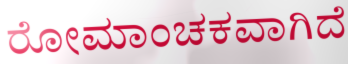
ರೋಮಾಂಚಕವಾಗಿದೆ